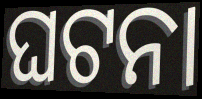
ଘଟନା